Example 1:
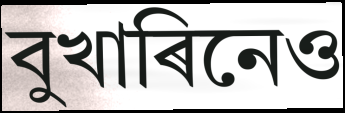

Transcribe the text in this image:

বুখাৰিনেও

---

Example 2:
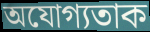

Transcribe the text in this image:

অযোগ্যতাক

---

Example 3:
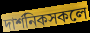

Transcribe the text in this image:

দাৰ্শনিকসকলে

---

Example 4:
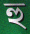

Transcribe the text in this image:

হু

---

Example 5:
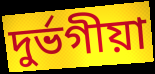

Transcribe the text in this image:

দুৰ্ভগীয়া